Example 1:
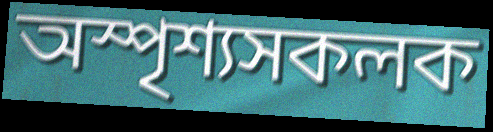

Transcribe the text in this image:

অস্পৃশ্যসকলক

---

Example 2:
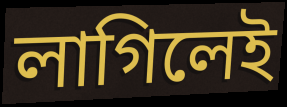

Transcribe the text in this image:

লাগিলেই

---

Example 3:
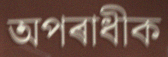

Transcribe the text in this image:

অপৰাধীক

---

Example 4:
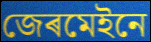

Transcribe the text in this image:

জেৰমেইনে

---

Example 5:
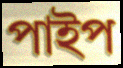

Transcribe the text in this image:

পাইপ